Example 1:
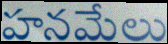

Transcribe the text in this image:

హనమేలు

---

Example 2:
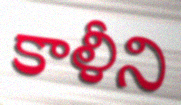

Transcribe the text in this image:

కాళీని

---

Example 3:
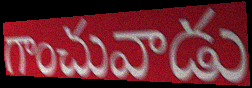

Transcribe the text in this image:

గాంచువాడు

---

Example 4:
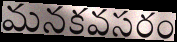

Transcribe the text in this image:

మనకవసరం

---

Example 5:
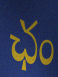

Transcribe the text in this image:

ఛం